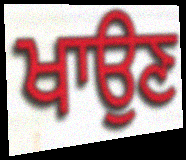
ਖਾਉਣ